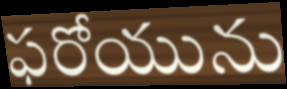
ఫరోయును